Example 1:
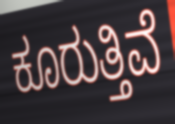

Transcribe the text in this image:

ಕೂರುತ್ತಿವೆ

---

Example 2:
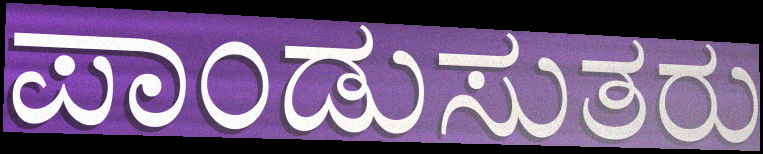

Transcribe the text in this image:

ಪಾಂಡುಸುತರು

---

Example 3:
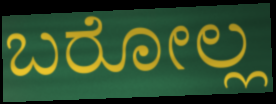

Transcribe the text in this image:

ಬರೋಲ್ಲ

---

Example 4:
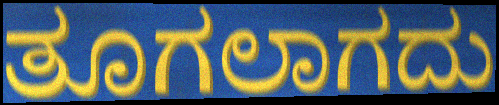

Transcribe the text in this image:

ತೂಗಲಾಗದು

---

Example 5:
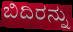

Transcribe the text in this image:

ಬಿದಿರನ್ನು